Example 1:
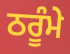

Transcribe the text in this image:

ਠਰੂੰਮੇ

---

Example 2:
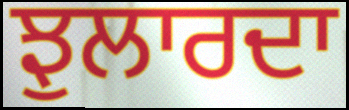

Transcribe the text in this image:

ਝੁਲਾਰਦਾ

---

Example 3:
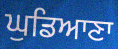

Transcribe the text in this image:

ਘੁਡਿਆਣਾ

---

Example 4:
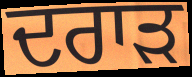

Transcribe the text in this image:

ਦਰਾੜ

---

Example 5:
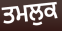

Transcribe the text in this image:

ਤਮਲੁਕ